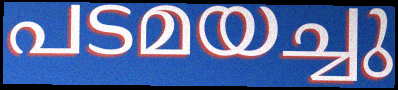
പടമയച്ചു